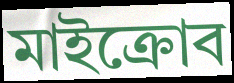
মাইক্রোব